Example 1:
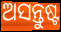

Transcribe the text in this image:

ଅସନ୍ତୁଷ୍ଟ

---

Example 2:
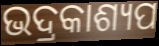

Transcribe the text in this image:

ଭଦ୍ରକାଶ୍ୟପ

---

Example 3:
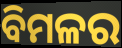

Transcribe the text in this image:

ବିମଳର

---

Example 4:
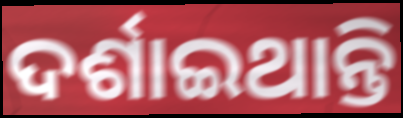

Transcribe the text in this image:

ଦର୍ଶାଇଥାନ୍ତି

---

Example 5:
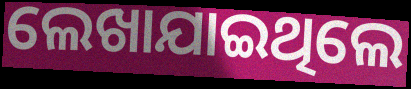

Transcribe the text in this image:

ଲେଖାଯାଇଥିଲେ